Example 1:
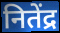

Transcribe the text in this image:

नितेंद्र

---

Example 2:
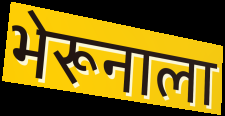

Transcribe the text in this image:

भेरूनाला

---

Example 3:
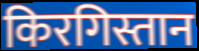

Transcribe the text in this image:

किरगिस्तान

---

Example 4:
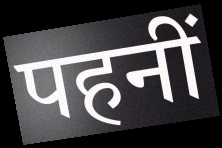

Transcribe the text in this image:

पहनीं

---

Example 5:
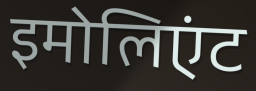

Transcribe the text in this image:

इमोलिएंट